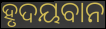
ହୃଦୟବାନ